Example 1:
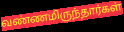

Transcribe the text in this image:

வண்ணமிருந்தார்கள்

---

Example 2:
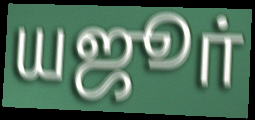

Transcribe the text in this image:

யஜூர்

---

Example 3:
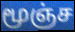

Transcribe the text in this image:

மூஞ்ச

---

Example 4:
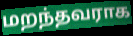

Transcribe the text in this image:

மறந்தவராக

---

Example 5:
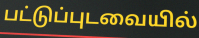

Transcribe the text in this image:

பட்டுப்புடவையில்